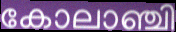
കോലാഞ്ചി